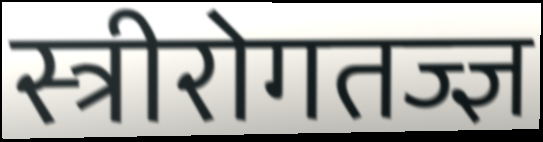
स्‍त्रीरोगतज्‍ज्ञ